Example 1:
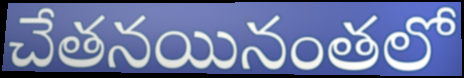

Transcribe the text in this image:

చేతనయినంతలో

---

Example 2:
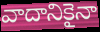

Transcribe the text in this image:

వాదానికైనా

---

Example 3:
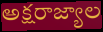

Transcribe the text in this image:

అక్షరాజ్యాల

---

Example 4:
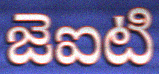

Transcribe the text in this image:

జెఐటి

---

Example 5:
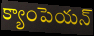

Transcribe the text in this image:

క్యాంపెయన్